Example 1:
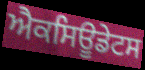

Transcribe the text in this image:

ਐਕਸਿਊਡੇਟਸ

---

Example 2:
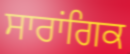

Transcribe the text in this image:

ਸਾਰਾਂਗਿਕ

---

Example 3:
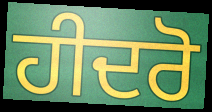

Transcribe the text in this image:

ਹੀਦਰੋ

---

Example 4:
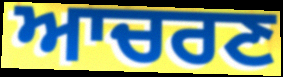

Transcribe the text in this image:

ਆਚਰਣ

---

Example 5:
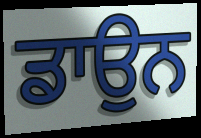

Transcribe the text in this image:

ਡਾਉਨ